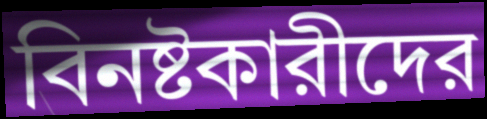
বিনষ্টকারীদের